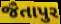
જૈતાપુર